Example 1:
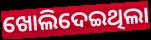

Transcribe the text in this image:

ଖୋଲିଦେଇଥିଲା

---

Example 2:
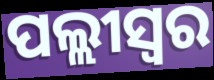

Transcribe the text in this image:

ପଲ୍ଲୀସ୍ଵର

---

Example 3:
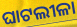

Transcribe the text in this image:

ଘାଟଲୀଳା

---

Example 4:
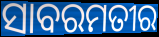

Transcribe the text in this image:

ସାବରମତୀର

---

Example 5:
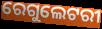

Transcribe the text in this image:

ରେଗୁଲେଟରୀ